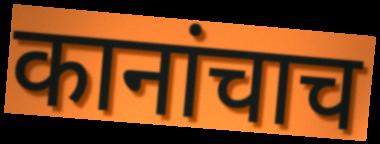
कानांचाच